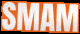
SMAM